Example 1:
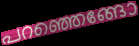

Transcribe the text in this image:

പറഞ്ഞെങ്ങോ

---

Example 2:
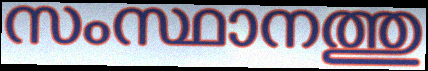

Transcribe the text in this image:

സംസ്ഥാനത്തു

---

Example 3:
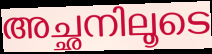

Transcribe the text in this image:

അച്ഛനിലൂടെ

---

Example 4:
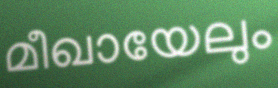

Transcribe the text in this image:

മീഖായേലും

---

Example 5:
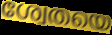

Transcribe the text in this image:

ശ്വേതയെ